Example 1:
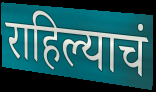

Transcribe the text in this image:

राहिल्याचं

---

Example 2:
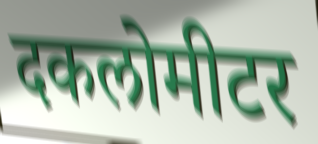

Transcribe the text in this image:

दकलोमीटर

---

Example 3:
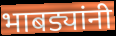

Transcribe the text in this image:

भाबड्यांनी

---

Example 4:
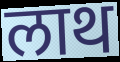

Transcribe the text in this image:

लाथ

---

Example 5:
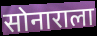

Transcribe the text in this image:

सोनाराला